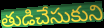
తుడిచేసుకుని